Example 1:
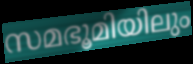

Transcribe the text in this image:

സമഭൂമിയിലും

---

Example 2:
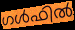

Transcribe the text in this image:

ഗൾഫിൽ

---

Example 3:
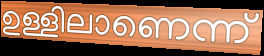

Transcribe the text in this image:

ഉള്ളിലാണെന്ന്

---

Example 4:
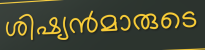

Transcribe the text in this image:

ശിഷ്യൻമാരുടെ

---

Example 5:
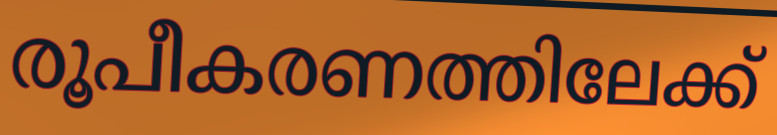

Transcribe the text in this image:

രൂപീകരണത്തിലേക്ക്